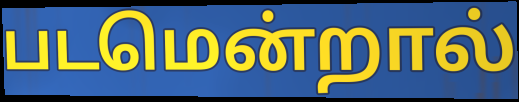
படமென்றால்